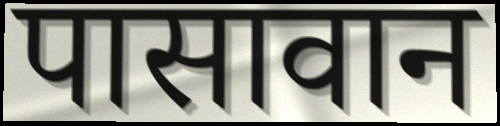
पासावान